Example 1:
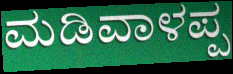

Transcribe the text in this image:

ಮಡಿವಾಳಪ್ಪ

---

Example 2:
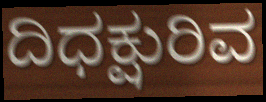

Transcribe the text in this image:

ದಿಧಕ್ಷುರಿವ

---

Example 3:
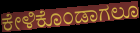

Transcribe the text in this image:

ಕೇಳಿಕೊಂಡಾಗಲೂ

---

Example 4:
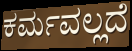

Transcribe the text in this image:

ಕರ್ಮವಲ್ಲದೆ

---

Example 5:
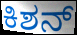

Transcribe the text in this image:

ಕಿಶನ್